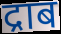
द्राब